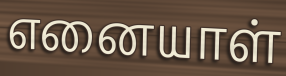
எனையாள்